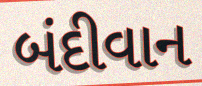
બંદીવાન